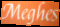
Meghes